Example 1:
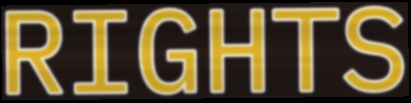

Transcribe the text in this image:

RIGHTS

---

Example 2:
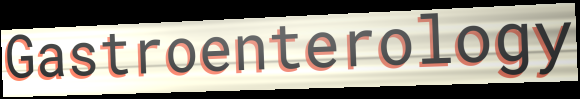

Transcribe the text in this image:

Gastroenterology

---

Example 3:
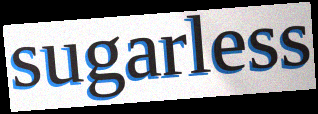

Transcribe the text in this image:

sugarless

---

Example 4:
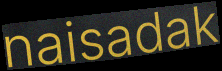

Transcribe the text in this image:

naisadak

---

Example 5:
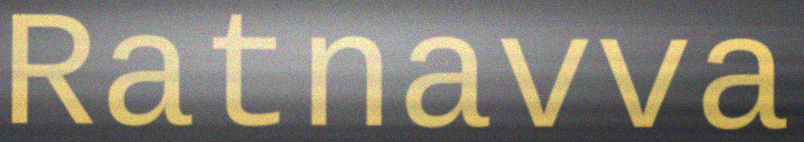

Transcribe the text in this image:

Ratnavva